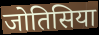
जोतिसिया